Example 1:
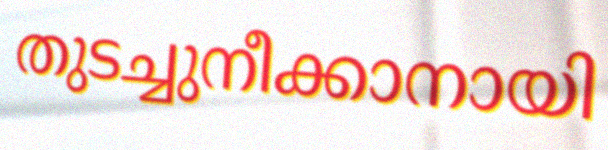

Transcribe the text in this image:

തുടച്ചുനീക്കാനായി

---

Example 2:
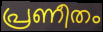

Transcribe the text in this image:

പ്രണീതം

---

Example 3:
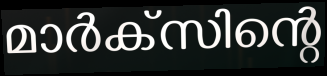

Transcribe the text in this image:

മാർക്‌സിന്റെ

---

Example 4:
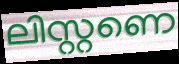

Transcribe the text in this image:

ലിസ്റ്റണെ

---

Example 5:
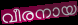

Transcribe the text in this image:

വീരനായ